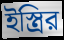
ইস্ত্রির